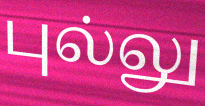
புல்லு